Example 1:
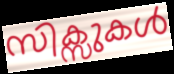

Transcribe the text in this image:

സിക്സുകൾ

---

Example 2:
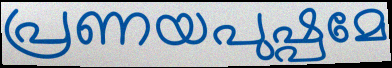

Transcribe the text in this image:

പ്രണയപുഷ്പമേ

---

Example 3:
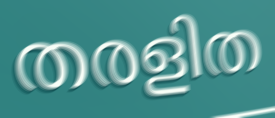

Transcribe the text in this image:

തരളിത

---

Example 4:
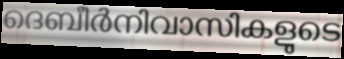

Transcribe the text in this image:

ദെബീർനിവാസികളുടെ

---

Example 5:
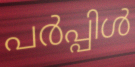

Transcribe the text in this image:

പർപ്പിൾ